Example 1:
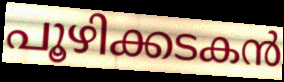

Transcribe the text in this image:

പൂഴിക്കടകൻ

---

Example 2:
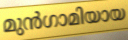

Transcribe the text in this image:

മുൻഗാമിയായ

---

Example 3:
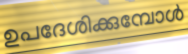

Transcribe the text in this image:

ഉപദേശിക്കുമ്പോൾ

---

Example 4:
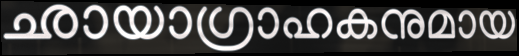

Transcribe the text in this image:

ഛായാഗ്രാഹകനുമായ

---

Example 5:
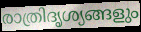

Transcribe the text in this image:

രാത്രിദൃശ്യങ്ങളും